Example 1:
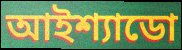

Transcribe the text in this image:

আইশ্যাডো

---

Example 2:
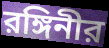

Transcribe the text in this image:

রঙ্গিনীর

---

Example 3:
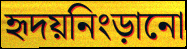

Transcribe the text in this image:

হৃদয়নিংড়ানো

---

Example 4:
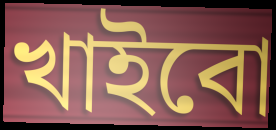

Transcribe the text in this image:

খাইবো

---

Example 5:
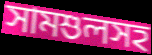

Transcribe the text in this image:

সামশুলসহ